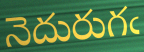
నెదురుగఁ